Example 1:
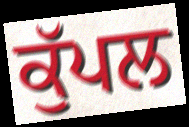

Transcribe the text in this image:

ਕੁੱਪਲ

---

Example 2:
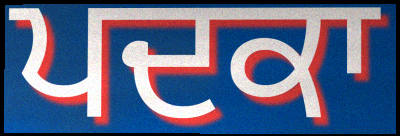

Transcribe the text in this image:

ਪਦਕਾ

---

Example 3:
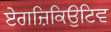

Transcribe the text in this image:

ਏਗਜ਼ਿਕਿਉਟਿਵ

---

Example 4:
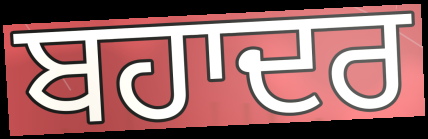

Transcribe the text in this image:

ਬਹਾਦਰ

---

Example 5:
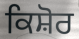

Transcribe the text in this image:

ਕਿਸ਼ੋਰ